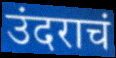
उंदराचं